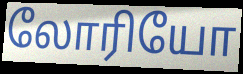
லோரியோ